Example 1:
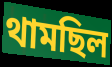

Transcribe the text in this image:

থামছিল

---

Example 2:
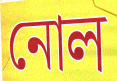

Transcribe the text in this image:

নোল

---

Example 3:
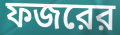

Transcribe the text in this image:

ফজরের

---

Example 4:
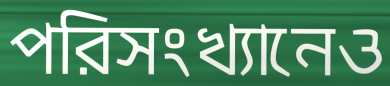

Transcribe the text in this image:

পরিসংখ্যানেও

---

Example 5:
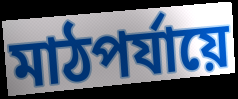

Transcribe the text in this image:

মাঠপর্যায়ে